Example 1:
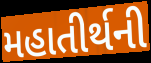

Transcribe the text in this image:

મહાતીર્થની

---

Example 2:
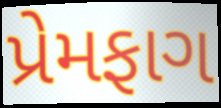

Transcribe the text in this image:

પ્રેમફાગ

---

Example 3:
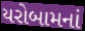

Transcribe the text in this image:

યરોબામનાં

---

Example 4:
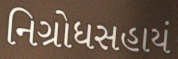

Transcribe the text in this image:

નિગ્રોધસહાયં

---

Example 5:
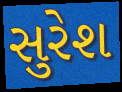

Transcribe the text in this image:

સુરેશ